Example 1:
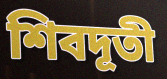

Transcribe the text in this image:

শিবদূতী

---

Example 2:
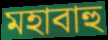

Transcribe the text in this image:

মহাবাহু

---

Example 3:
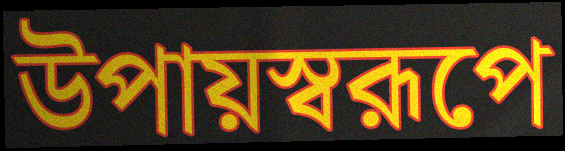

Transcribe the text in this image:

উপায়স্বরূপে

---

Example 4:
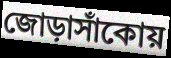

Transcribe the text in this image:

জোড়াসাঁকোয়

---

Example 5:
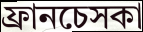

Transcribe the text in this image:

ফ্রানচেসকা